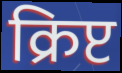
क्रिप्ट